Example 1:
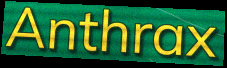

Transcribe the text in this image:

Anthrax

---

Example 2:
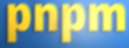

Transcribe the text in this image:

pnpm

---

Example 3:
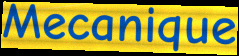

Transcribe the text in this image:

Mecanique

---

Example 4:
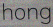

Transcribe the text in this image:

hong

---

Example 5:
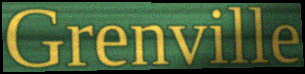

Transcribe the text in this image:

Grenville